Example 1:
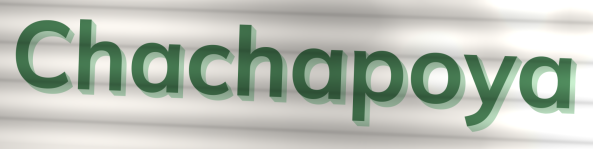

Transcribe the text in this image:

Chachapoya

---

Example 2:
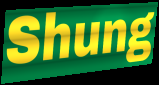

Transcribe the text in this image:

Shung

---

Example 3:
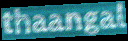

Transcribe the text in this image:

thaangal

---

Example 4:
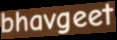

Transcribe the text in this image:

bhavgeet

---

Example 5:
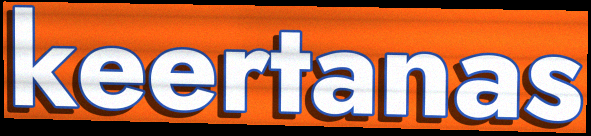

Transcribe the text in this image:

keertanas